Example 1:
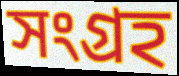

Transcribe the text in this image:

সংগ্ৰহ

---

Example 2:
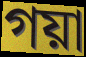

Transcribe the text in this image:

গয়া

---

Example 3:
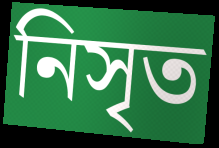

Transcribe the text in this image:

নিসৃত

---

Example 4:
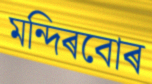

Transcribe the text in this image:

মন্দিৰবোৰ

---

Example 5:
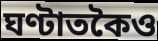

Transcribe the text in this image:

ঘণ্টাতকৈও